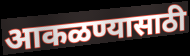
आकळण्यासाठी